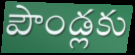
పౌండ్లకు